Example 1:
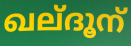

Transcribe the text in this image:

ഖല്ദൂന്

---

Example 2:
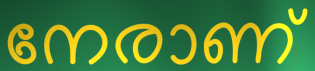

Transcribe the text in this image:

നേരാണ്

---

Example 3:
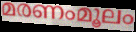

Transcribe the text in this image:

മരണംമൂലം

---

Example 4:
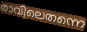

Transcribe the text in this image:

രാവിലെതന്നെ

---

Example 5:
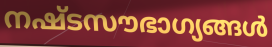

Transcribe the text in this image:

നഷ്ടസൗഭാഗ്യങ്ങൾ